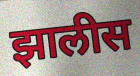
झालीस